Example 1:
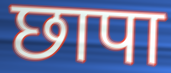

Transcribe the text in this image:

छापा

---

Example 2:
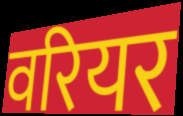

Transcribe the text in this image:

वरियर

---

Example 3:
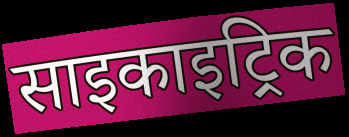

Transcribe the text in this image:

साइकाइट्रिक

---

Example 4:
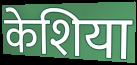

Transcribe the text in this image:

केशिया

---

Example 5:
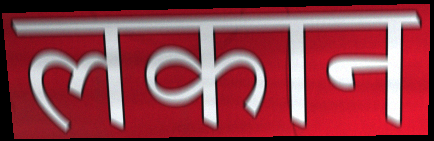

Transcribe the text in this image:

लकान